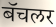
बॅचलर